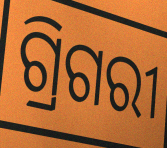
ଗ୍ରିଗରୀ